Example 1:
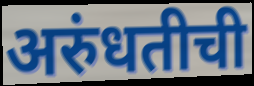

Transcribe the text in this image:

अरुंधतीची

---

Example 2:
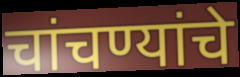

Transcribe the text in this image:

चांचण्यांचे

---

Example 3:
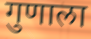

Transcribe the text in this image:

गुणाला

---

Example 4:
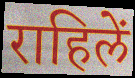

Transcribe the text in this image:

राहिलें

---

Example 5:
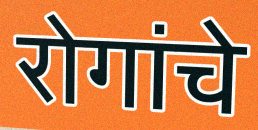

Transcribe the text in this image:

रोगांचे